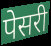
पेसरी